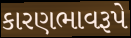
કારણભાવરૂપે